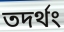
তদর্থং